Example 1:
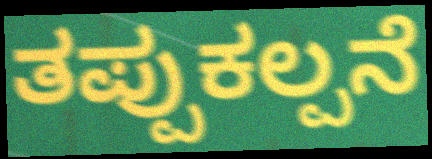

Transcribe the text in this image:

ತಪ್ಪುಕಲ್ಪನೆ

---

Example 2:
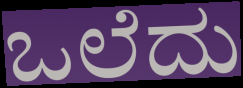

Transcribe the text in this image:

ಒಲೆದು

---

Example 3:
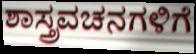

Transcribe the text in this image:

ಶಾಸ್ತ್ರವಚನಗಳಿಗೆ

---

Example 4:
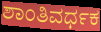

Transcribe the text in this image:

ಶಾಂತಿವರ್ಧಕ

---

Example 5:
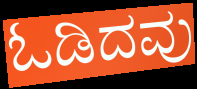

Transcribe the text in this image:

ಓಡಿದವು